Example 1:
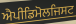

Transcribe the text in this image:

ਐਪੀਡਿਮੋਲਜਿਸਟ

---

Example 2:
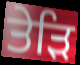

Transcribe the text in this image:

ਤੇੜਿ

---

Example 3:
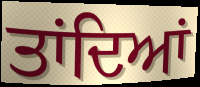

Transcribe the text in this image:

ਤਾਂਦਿਆਂ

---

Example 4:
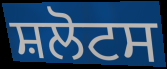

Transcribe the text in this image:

ਸ਼ਲੋਟਸ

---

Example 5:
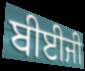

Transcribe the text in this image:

ਬੀਈਜੀ